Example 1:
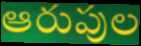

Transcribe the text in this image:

ఆరుపుల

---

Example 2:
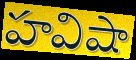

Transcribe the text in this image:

హవిషా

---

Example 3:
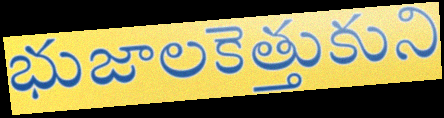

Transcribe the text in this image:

భుజాలకెత్తుకుని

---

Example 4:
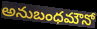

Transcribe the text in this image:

అనుబంధమౌనో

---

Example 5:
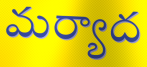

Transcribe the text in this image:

మర్యాద